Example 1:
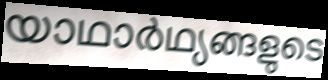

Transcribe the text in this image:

യാഥാർഥ്യങ്ങളുടെ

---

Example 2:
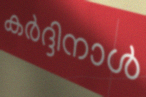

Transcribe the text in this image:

കർദ്ദിനാൾ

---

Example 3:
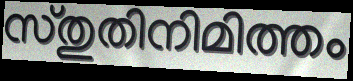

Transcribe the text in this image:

സ്തുതിനിമിത്തം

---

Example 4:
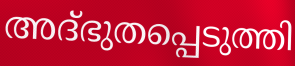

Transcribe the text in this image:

അദ്ഭുതപ്പെടുത്തി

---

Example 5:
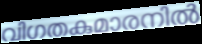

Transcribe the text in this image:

വിഗതകുമാരനിൽ